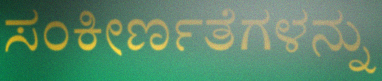
ಸಂಕೀರ್ಣತೆಗಳನ್ನು